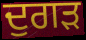
ਦੁਗੜ